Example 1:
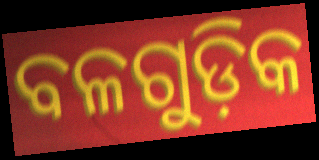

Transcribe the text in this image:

ବଳଗୁଡ଼ିକ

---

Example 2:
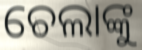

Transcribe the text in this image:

ଚେଲାଙ୍କୁ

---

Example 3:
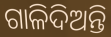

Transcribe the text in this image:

ଗାଳିଦିଅନ୍ତି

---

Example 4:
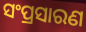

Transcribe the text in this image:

ସଂପ୍ରସାରଣ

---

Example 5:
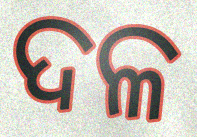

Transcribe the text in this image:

ଦଳ